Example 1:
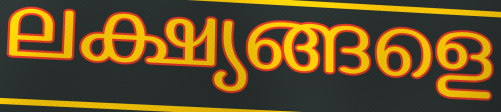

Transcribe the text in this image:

ലക്ഷ്യങ്ങളെ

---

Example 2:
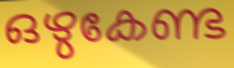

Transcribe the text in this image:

ഒഴുകേണ്ട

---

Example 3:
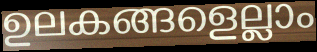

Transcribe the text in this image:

ഉലകങ്ങളെല്ലാം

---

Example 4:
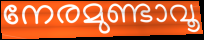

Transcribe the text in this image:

നേരമുണ്ടാവൂ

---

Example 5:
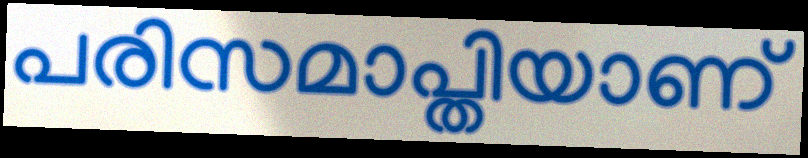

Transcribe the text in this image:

പരിസമാപ്തിയാണ്